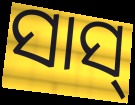
ସାସ୍